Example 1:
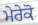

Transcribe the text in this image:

ਮੇਰੇਕੋ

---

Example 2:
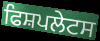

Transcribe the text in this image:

ਫਿਸ਼ਪਲੇਟਸ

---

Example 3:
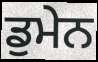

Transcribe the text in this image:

ਡੁਮੇਨ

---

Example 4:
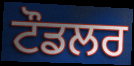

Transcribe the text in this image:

ਟੌਡਲਰ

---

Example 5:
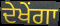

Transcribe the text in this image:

ਦੇਖੇਂਗਾ